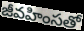
జీవహింసతో